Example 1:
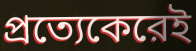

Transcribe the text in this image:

প্রত্যেকেরেই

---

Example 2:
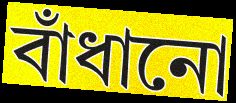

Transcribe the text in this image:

বাঁধানো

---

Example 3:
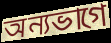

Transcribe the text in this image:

অন্যভাগে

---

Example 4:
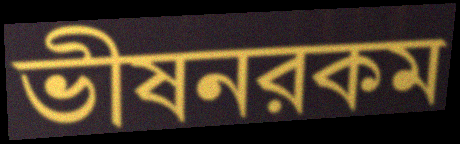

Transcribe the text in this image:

ভীষনরকম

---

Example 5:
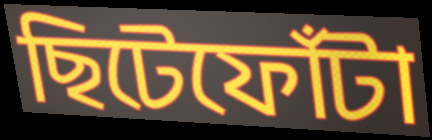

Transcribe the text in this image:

ছিটেফোঁটা